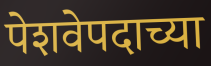
पेशवेपदाच्या